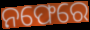
ନଫେରେ